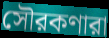
সৌরকণারা